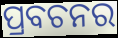
ପ୍ରବଚନର